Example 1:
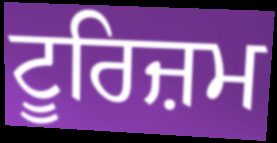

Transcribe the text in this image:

ਟੂਰਿਜ਼ਮ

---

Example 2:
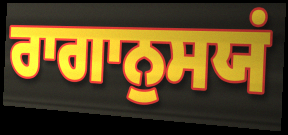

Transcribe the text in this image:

ਰਾਗਾਨੁਸਯਂ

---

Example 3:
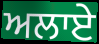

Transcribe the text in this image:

ਅਲਾਏ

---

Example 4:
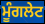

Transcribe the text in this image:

ਮੂੰਗਲੇਟ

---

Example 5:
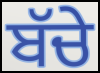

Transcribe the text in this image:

ਬੱਚੇ